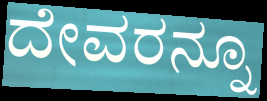
ದೇವರನ್ನೂ